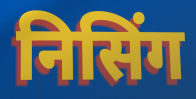
निसिंग